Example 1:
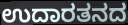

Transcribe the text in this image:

ಉದಾರತನದ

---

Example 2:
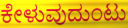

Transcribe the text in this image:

ಕೇಳುವುದುಂಟು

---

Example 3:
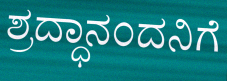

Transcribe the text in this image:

ಶ್ರದ್ಧಾನಂದನಿಗೆ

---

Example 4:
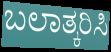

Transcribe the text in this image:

ಬಲಾತ್ಕರಿಸಿ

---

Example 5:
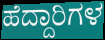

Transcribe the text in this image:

ಹೆದ್ದಾರಿಗಳ